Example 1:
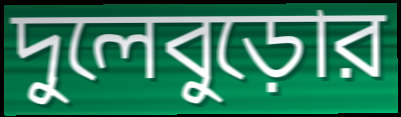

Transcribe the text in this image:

দুলেবুড়োর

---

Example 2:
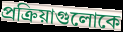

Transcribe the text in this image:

প্রক্রিয়াগুলোকে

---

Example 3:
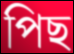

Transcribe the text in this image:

পিছ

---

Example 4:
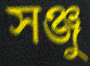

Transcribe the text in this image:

সঞ্জু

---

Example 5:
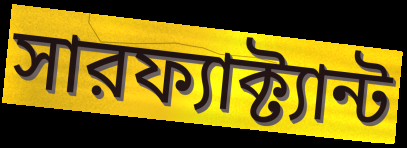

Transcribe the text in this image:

সারফ্যাক্ট্যান্ট